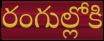
రంగుల్లోకి